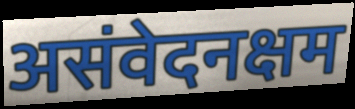
असंवेदनक्षम